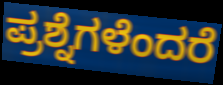
ಪ್ರಶ್ನೆಗಳೆಂದರೆ